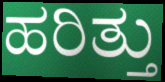
ಹರಿತ್ತು